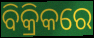
ବିକ୍ରିକରେ